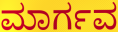
ಮಾರ್ಗವ